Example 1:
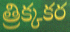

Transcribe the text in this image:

త్రిక్కకర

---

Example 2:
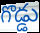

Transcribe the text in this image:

గొడ్డు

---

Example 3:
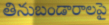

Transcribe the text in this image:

తినుబండారాలపై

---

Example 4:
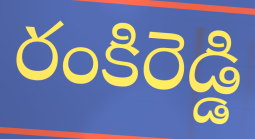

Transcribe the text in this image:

రంకిరెడ్డి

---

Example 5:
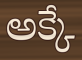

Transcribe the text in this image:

అక్కే